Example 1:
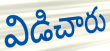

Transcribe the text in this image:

విడిచారు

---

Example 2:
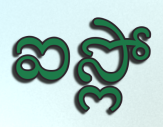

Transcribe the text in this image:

ఐస్లో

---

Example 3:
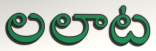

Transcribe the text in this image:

లలాట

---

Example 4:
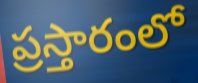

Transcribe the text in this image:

ప్రస్తారంలో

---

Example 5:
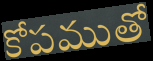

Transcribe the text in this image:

కోపముతో